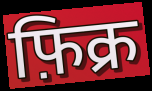
फ़िक्र